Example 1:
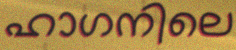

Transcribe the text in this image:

ഹാഗനിലെ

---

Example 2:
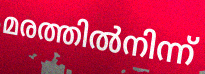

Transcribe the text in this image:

മരത്തിൽനിന്ന്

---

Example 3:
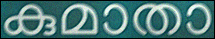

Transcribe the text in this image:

കുമാതാ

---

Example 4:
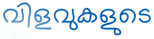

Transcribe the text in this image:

വിളവുകളുടെ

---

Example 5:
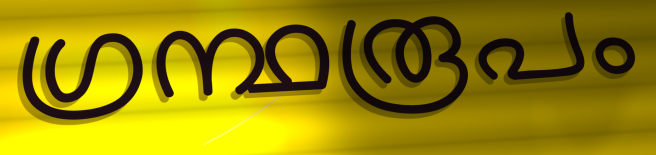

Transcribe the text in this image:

ഗ്രന്ഥരൂപം